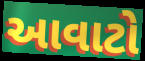
આવાટો